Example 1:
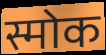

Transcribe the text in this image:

स्मोक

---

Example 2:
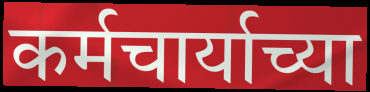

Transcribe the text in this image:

कर्मचार्याच्या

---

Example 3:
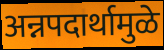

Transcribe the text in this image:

अन्नपदार्थामुळे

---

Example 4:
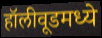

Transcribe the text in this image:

हॉलीवूडमध्ये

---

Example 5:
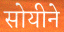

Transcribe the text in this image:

सोयीने